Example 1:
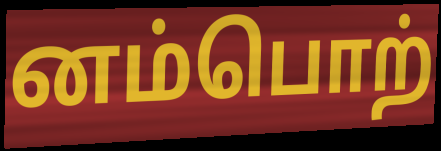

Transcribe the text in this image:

னம்பொற்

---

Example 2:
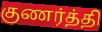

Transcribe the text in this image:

குணர்த்தி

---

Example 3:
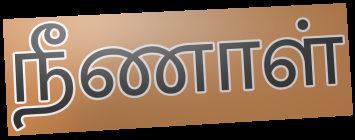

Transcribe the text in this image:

நீணாள்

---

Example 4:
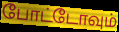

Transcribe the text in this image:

போட்டோவும்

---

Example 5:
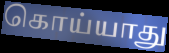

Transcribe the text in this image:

கொய்யாது